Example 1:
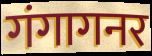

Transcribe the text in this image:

गंगागनर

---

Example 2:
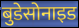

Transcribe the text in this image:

बुडेसोनाइड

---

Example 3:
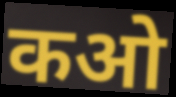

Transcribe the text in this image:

कओ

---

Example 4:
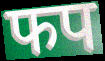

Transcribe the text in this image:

फप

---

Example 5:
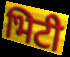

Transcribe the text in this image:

भिटी